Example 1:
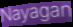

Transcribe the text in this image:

Nayagan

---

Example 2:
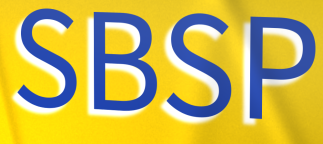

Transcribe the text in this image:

SBSP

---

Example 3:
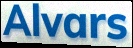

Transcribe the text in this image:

Alvars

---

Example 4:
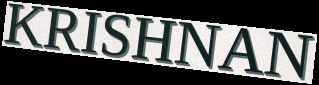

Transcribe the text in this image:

KRISHNAN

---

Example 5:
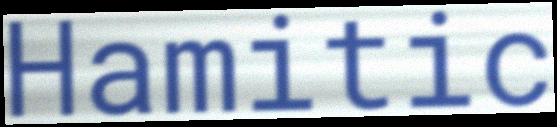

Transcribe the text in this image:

Hamitic